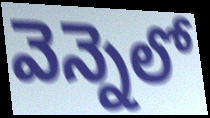
వెన్నెలో